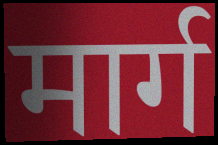
मार्ग